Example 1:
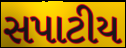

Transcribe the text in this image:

સપાટીય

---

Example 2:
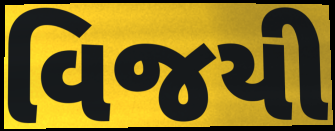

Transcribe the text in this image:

વિજયી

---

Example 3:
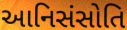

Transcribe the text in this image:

આનિસંસોતિ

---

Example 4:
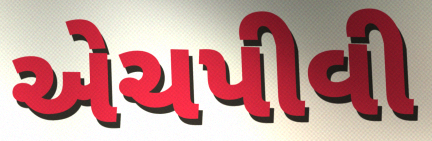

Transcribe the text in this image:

એચપીવી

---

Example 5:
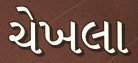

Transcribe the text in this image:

ચેખલા